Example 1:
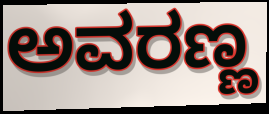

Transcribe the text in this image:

ಅವರಣ್ಣ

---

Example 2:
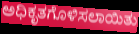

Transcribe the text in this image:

ಅಧಿಕೃತಗೊಳಿಸಲಾಯಿತು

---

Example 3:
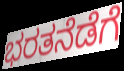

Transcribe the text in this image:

ಭರತನೆಡೆಗೆ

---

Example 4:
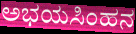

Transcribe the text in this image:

ಅಭಯಸಿಂಹನ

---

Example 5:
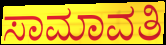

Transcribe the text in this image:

ಸಾಮಾವತಿ